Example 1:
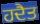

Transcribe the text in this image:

ਹਦੈਤ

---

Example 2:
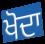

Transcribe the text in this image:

ਖੋਦਾ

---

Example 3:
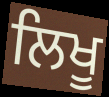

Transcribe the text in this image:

ਲਿਖੂ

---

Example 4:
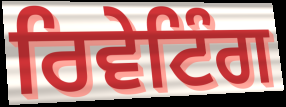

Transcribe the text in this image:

ਰਿਵੇਟਿੰਗ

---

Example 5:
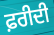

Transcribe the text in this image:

ਫ਼ਰੀਦੀ